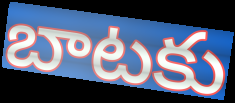
బాటకు